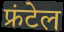
फ्रंटेल